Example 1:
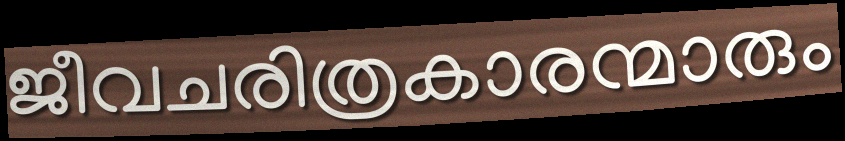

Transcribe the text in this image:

ജീവചരിത്രകാരന്മാരും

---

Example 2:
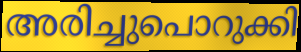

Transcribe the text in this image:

അരിച്ചുപൊറുക്കി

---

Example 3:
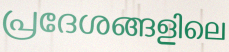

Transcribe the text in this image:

പ്രദേശങ്ങളിലെ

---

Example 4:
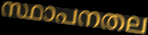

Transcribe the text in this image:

സ്ഥാപനതല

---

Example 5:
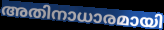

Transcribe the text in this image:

അതിനാധാരമായി